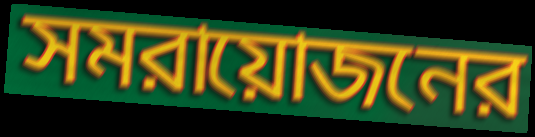
সমরায়োজনের